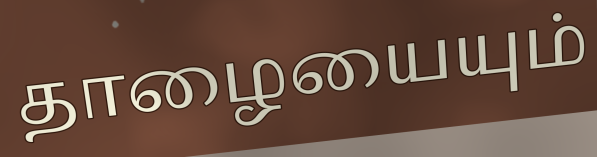
தாழையையும்